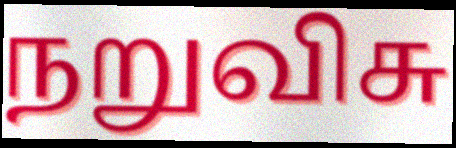
நறுவிசு